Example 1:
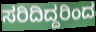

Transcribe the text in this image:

ಸರಿದಿದ್ದರಿಂದ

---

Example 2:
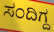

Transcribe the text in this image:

ಸಂದಿಗ್ದ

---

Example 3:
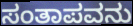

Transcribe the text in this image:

ಸಂತಾಪವನು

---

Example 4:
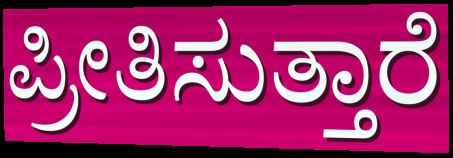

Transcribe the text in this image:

ಪ್ರೀತಿಸುತ್ತಾರೆ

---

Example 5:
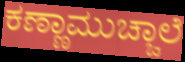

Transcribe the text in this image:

ಕಣ್ಣಾಮುಚ್ಚಾಲೆ